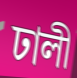
ঢালী